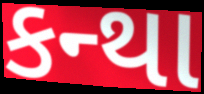
કન્થા